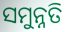
ସମୁନ୍ନତି